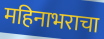
महिनाभराचा